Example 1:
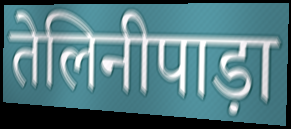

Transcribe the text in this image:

तेलिनीपाड़ा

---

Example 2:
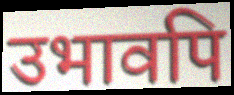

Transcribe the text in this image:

उभावपि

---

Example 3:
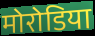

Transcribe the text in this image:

मोरोडिया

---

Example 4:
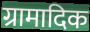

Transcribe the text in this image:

ग्रामादिक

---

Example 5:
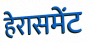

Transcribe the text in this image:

हेरासमेंट